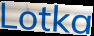
Lotka